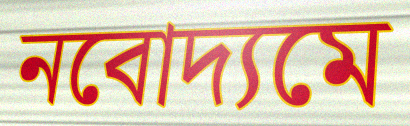
নবোদ্যমে